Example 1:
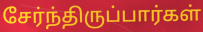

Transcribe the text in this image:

சேர்ந்திருப்பார்கள்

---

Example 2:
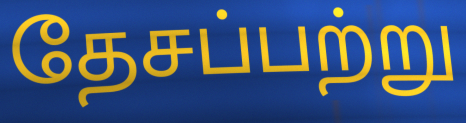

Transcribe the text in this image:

தேசப்பற்று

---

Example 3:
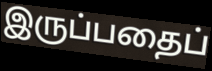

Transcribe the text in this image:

இருப்பதைப்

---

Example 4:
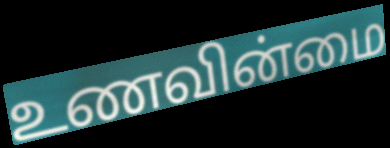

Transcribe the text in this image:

உணவின்மை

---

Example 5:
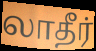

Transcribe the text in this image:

லாதீர்